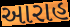
આરાહ